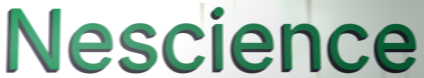
Nescience